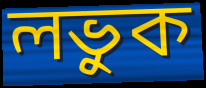
লভুক